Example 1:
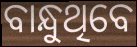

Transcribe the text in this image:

ବାନ୍ଧୁଥିବେ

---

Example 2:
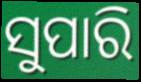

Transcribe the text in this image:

ସୁପାରି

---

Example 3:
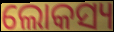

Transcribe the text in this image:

ଲୋକସ୍ୟ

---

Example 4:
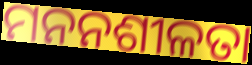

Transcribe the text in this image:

ମନନଶୀଳତା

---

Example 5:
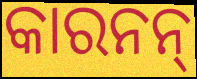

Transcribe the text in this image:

କାରନନ୍